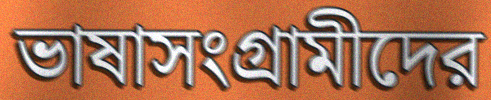
ভাষাসংগ্রামীদের